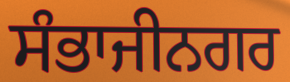
ਸੰਭਾਜੀਨਗਰ